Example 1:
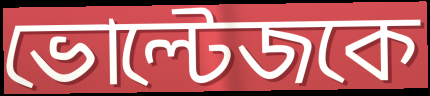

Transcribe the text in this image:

ভোল্টেজকে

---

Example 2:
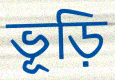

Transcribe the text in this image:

ভূড়ি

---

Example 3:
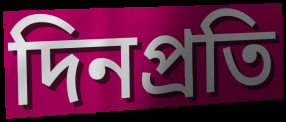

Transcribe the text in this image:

দিনপ্রতি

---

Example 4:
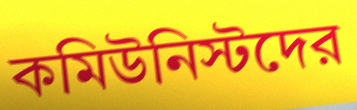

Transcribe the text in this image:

কমিউনিস্টদের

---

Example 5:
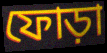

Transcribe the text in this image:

ফোড়া